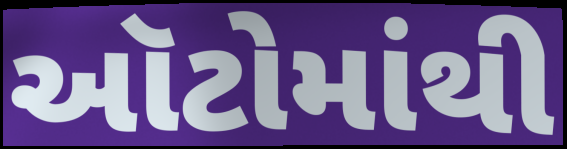
ઑટોમાંથી